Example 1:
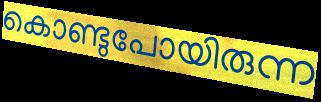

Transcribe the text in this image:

കൊണ്ടുപോയിരുന്ന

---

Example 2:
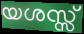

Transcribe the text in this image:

യശസ്സ്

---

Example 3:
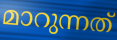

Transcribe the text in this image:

മാറുന്നത്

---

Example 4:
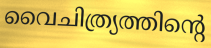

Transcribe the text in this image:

വൈചിത്ര്യത്തിന്റെ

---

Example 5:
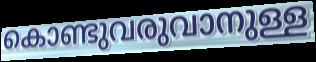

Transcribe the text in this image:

കൊണ്ടുവരുവാനുള്ള